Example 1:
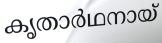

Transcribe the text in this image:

കൃതാർഥനായ്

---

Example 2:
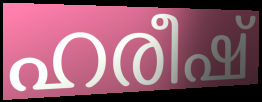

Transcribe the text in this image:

ഹരീഷ്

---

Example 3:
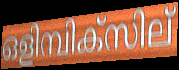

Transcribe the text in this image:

ഒളിമ്പിക്സില്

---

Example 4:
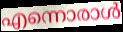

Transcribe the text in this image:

എന്നൊരാൾ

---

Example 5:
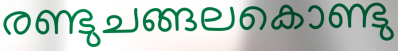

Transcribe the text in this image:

രണ്ടുചങ്ങലകൊണ്ടു